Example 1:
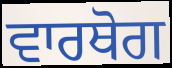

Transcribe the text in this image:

ਵਾਰਥੋਗ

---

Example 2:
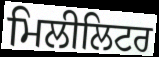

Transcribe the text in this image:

ਮਿਲੀਲਿਟਰ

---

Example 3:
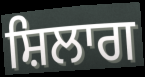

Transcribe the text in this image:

ਸ਼ਿਲਾਗ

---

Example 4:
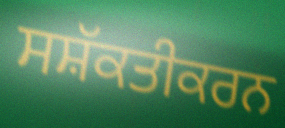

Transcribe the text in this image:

ਸਸ਼ੱਕਤੀਕਰਨ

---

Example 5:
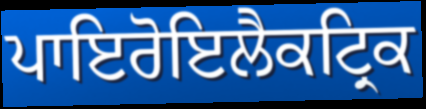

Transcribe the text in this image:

ਪਾਇਰੋਇਲੈਕਟ੍ਰਿਕ